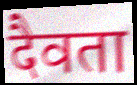
दैवता